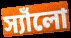
স্যাঁলো